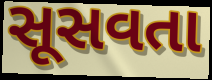
સૂસવતા